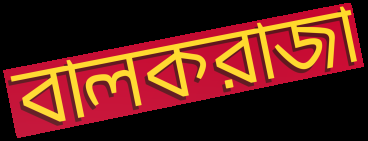
বালকরাজা